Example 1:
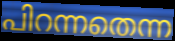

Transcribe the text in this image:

പിറന്നതെന്ന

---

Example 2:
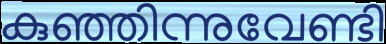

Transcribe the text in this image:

കുഞ്ഞിന്നുവേണ്ടി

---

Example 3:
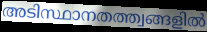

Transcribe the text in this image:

അടിസ്ഥാനതത്ത്വങ്ങളിൽ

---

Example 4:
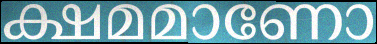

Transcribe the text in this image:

ക്ഷമമാണോ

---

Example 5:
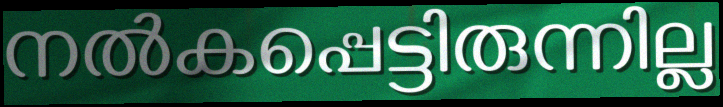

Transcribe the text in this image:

നൽകപ്പെട്ടിരുന്നില്ല